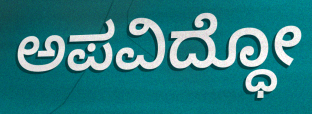
ಅಪವಿದ್ಧೋ